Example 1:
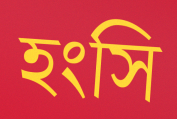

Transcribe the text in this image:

হংসি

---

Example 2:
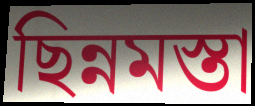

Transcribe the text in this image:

ছিন্নমস্তা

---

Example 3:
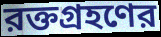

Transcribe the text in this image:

রক্তগ্রহণের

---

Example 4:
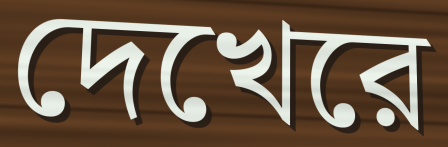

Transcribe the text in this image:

দেখেরে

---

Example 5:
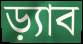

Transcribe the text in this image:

ড়্যাব